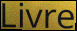
Livre